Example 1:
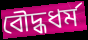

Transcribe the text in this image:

বৌদ্ধধর্ম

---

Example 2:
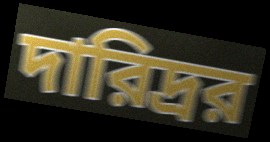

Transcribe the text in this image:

দারিদ্রর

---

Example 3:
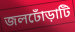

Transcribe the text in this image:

জলঢোঁড়াটি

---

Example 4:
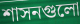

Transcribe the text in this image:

শাসনগুলো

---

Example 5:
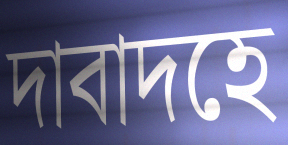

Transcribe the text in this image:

দাবাদহে